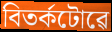
বিতৰ্কটোৱে